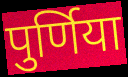
पुर्णिया